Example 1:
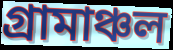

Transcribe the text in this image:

গ্ৰামাঞ্চল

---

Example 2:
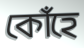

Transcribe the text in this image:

কোঁহে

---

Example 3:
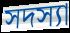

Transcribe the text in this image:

সদস্যা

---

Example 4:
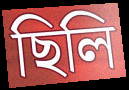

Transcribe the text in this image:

ছিলি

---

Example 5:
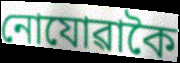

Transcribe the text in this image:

নোযোৱাকৈ